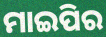
ମାଇପିର